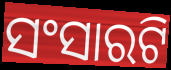
ସଂସାରଟି